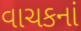
વાચકનાં